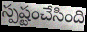
స్పష్టంచేసింది